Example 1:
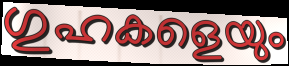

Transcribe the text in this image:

ഗുഹകളെയും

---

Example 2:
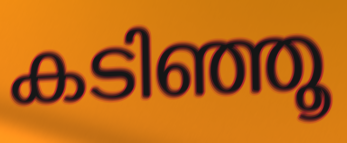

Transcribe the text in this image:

കടിഞ്ഞൂ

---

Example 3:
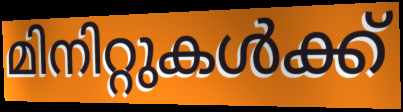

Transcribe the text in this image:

മിനിറ്റുകൾക്ക്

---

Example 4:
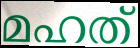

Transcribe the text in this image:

മഹത്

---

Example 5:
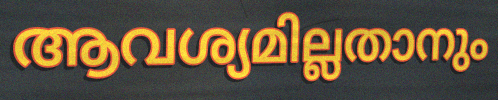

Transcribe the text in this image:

ആവശ്യമില്ലതാനും